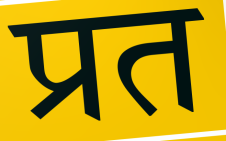
प्रत